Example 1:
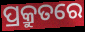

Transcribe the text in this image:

ପ୍ରକ୍ରୁତରେ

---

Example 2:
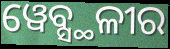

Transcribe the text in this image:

ୱେବ୍ସ୍ଥଳୀର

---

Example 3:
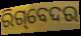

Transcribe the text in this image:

ରିଗ୍‌ବେଦର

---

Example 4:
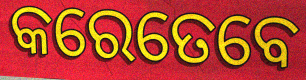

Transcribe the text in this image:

କରେତେବେ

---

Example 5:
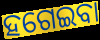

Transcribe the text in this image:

ହଗେଇବା